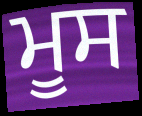
ਮੂਸ